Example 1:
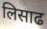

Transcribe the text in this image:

लिसाढ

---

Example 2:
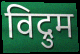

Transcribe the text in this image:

विद्रुम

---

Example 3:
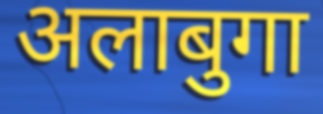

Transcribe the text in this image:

अलाबुगा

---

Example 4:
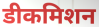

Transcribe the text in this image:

डीकमिशन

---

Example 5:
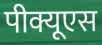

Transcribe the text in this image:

पीक्यूएस